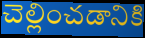
చెల్లించడానికి